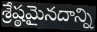
శ్రేష్ఠమైనదాన్ని